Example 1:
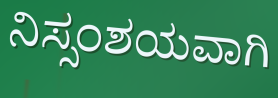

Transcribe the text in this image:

ನಿಸ್ಸಂಶಯವಾಗಿ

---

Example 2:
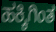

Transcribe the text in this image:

ಹಕ್ಕಿಗಿಂತ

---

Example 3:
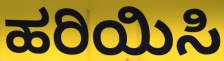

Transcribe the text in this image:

ಹರಿಯಿಸಿ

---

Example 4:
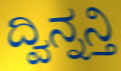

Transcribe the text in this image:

ದ್ವಿನ್ನನ್ತಿ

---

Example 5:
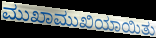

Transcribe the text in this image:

ಮುಖಾಮುಖಿಯಾಯಿತು